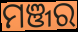
ମଞ୍ଜର